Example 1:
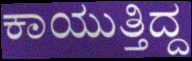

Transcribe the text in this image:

ಕಾಯುತ್ತಿದ್ದ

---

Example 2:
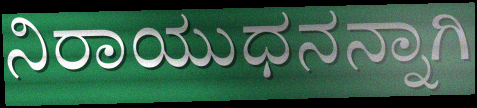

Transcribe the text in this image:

ನಿರಾಯುಧನನ್ನಾಗಿ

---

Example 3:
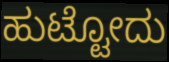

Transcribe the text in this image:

ಹುಟ್ಟೋದು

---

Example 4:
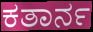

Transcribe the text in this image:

ಕತಾರ್ನ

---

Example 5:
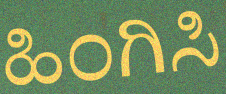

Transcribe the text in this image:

ಹಿಂಗಿಸಿ